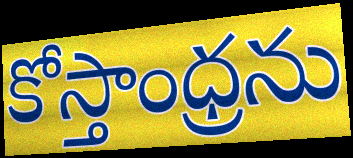
కోస్తాంధ్రను